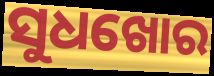
ସୁଧଖୋର